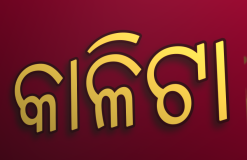
କାଳିଟା